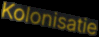
Kolonisatie